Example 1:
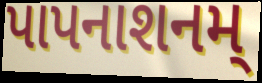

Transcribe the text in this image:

પાપનાશનમ્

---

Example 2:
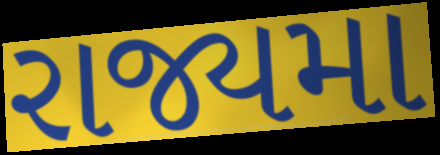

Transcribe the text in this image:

રાજ્યમા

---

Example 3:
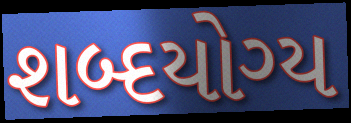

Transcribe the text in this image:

શબ્દયોગ્ય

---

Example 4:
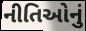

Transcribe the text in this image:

નીતિઓનું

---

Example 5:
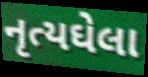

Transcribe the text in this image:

નૃત્યઘેલા